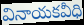
వినాయకవీధి